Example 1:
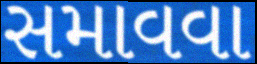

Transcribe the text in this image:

સમાવવા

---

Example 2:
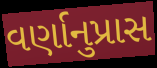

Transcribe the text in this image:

વર્ણાનુપ્રાસ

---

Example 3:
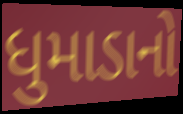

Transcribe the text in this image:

ધુમાડાનો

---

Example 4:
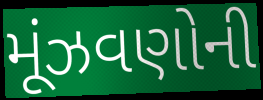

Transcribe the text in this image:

મૂંઝવણોની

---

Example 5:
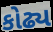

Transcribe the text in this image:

કોઢ્ય